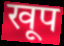
खूप